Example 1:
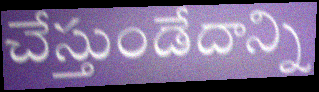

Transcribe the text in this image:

చేస్తుండేదాన్ని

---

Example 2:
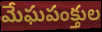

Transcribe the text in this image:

మేఘపంక్తుల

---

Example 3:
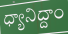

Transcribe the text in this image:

ధ్యానిద్దాం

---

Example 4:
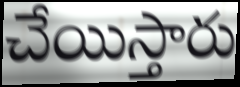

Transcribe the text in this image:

చేయిస్తారు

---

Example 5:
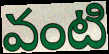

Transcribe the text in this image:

వంటి